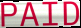
PAID